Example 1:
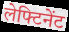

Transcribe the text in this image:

लेफ्टिनेंट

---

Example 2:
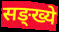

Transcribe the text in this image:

सङ्ख्ये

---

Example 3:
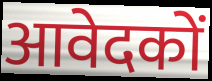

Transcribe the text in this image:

आवेदकों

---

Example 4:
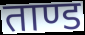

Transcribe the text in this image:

ताण्ड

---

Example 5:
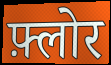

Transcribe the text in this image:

फ़्लोर